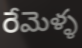
రేమెళ్ళ